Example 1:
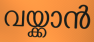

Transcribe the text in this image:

വയ്ക്കാൻ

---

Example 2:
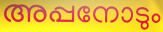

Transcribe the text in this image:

അപ്പനോടും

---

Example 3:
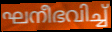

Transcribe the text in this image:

ഘനീഭവിച്ച്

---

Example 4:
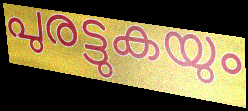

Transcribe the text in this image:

പുരട്ടുകയും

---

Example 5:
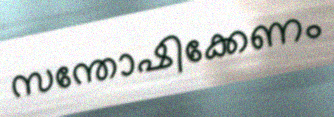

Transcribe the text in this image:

സന്തോഷിക്കേണം